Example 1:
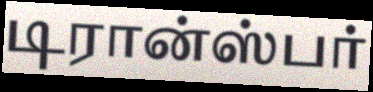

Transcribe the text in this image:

டிரான்ஸ்பர்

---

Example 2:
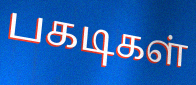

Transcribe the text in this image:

பகடிகள்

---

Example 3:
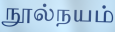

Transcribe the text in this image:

நூல்நயம்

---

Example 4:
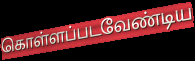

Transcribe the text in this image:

கொள்ளப்படவேண்டிய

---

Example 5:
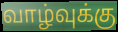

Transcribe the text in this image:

வாழ்வுக்கு